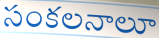
సంకలనాలూ